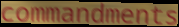
commandments